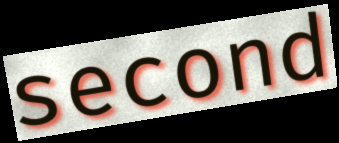
second